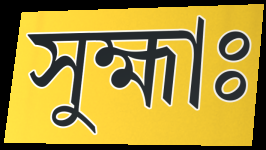
সুহ্মাঃ